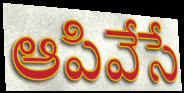
ఆపివేసే